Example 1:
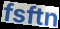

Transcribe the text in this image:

fsftn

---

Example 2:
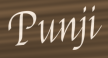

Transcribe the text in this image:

Punji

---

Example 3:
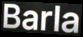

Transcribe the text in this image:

Barla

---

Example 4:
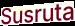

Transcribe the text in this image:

Susruta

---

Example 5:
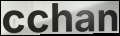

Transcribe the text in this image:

cchan